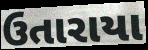
ઉતારાયા